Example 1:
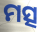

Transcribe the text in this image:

ମତ୍ସ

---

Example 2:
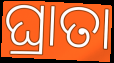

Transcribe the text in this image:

ଘ୍ରାତା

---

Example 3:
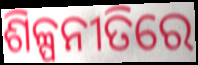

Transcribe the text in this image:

ଶିଳ୍ପନୀତିରେ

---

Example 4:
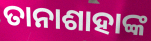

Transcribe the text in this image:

ତାନାଶାହାଙ୍କ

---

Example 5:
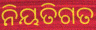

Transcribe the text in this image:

ନିୟତିଗତ